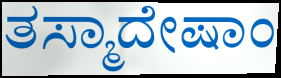
ತಸ್ಮಾದೇಷಾಂ